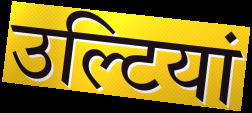
उल्‍टियां